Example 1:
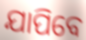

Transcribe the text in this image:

ଯାପିବେ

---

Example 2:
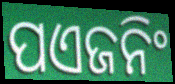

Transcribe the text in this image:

ପଏଜନିଂ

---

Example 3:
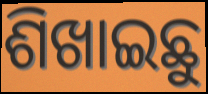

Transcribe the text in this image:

ଶିଖାଇଛୁ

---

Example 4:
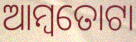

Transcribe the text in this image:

ଆମ୍ବତୋଟା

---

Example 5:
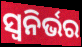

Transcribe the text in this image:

ସ୍ୱନିର୍ଭର